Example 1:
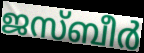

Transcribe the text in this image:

ജസ്ബീർ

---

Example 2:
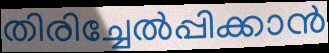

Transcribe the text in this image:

തിരിച്ചേൽപ്പിക്കാൻ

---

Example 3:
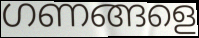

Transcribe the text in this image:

ഗണങ്ങളെ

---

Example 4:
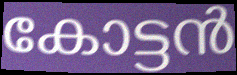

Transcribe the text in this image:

കോട്ടൻ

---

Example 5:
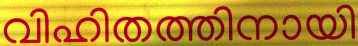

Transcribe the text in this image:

വിഹിതത്തിനായി